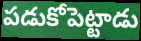
పడుకోపెట్టాడు